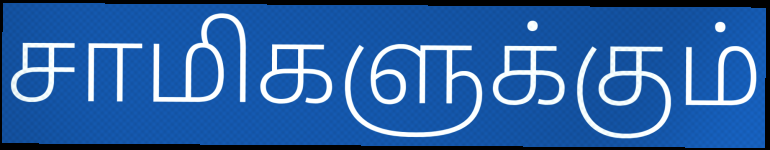
சாமிகளுக்கும்